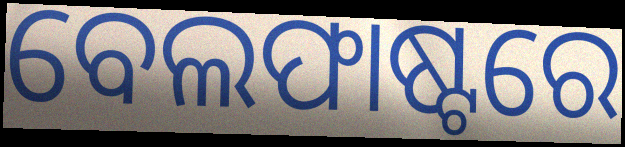
ବେଲଫାଷ୍ଟରେ